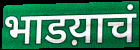
भाडय़ाचं